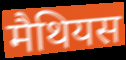
मैथियस